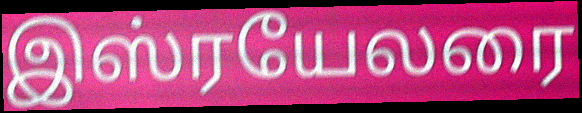
இஸ்ரயேலரை